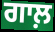
ਗਾਲ਼